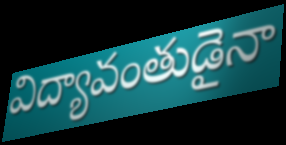
విద్యావంతుడైనా